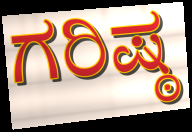
ಗರಿಷ್ಠ